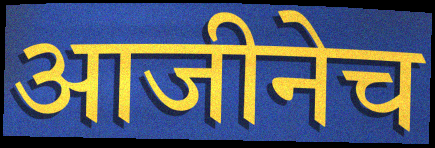
आजीनेच